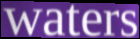
waters